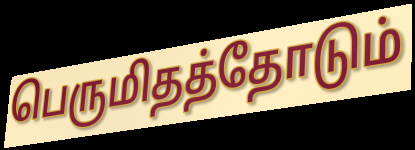
பெருமிதத்தோடும்